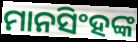
ମାନସିଂହଙ୍କ